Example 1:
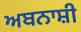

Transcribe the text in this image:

ਅਬਨਾਸ਼ੀ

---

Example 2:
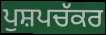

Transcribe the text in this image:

ਪੁਸ਼ਪਚੱਕਰ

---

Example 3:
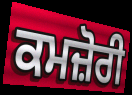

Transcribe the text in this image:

ਕਮਜ਼ੋਰੀ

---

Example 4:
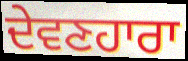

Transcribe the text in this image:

ਦੇਵਣਹਾਰਾ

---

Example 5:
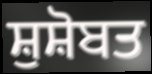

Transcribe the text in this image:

ਸ਼ੁਸ਼ੋਬਤ